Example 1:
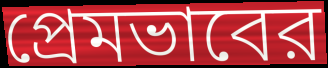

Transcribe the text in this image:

প্রেমভাবের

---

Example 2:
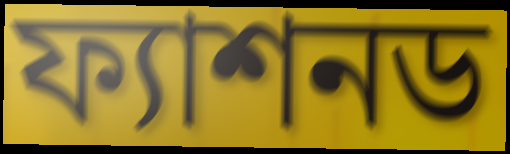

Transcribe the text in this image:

ফ্যাশনড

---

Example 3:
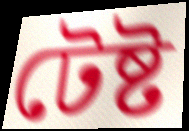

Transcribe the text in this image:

টেষ্ট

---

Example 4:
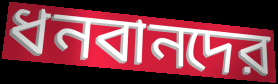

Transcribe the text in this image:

ধনবানদের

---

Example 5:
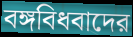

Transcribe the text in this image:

বঙ্গবিধবাদের